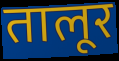
तालूर